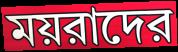
ময়রাদের